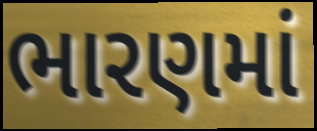
ભારણમાં